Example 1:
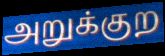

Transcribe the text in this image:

அறுக்குற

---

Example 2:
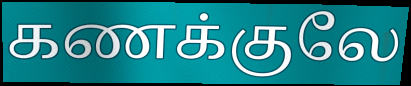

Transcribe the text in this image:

கணக்குலே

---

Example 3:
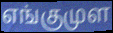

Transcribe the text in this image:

எங்குமுள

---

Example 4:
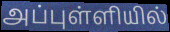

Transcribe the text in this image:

அப்புள்ளியில்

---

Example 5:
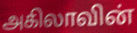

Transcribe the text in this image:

அகிலாவின்